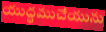
యుద్ధముచేయును